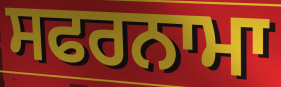
ਸਫਰਨਾਮਾ